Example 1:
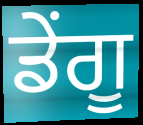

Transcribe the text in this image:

ਡੇਂਗੂ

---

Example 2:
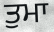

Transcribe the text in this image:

ਤੁਮਾ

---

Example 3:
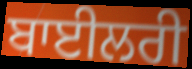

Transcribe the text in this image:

ਬਾਈਲਰੀ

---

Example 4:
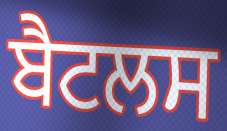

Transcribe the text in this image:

ਬੈਟਲਸ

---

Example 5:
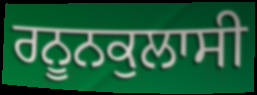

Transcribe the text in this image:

ਰਨੂਨਕੁਲਾਸੀ